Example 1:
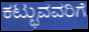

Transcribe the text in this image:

ಕಟ್ಟುವವರಿಗೆ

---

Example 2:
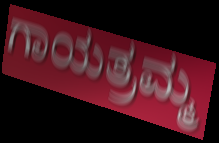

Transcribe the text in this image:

ಗಾಯತ್ರಮ್ಮ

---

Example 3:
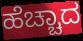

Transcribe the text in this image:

ಹೆಚ್ಚಾದ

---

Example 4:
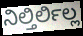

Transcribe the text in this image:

ನಿಲ್ತಿರ್ಲಿಲ್ಲ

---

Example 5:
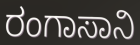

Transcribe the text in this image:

ರಂಗಾಸಾನಿ